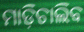
ମାଡ଼ିଚାଲିବ